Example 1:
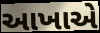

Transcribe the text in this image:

આખાએ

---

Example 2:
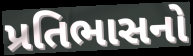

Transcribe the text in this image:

પ્રતિભાસનો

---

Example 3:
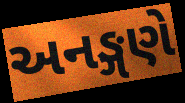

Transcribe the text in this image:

અનઙ્ગણે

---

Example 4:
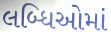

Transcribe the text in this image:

લબ્ધિઓમાં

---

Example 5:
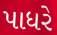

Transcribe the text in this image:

પાધરે